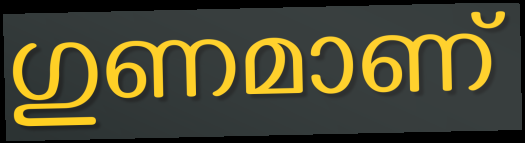
ഗുണമാണ്